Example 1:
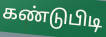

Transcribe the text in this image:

கண்டுபிடி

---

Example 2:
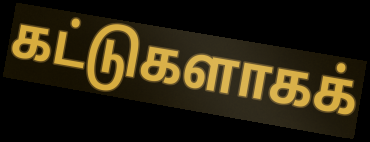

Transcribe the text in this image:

கட்டுகளாகக்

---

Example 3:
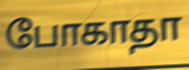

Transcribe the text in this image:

போகாதா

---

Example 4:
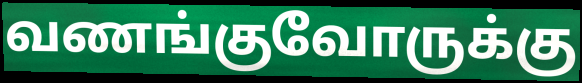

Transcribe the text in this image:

வணங்குவோருக்கு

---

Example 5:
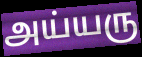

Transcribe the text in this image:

அய்யரு